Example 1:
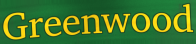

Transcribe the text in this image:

Greenwood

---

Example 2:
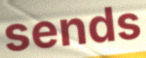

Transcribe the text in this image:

sends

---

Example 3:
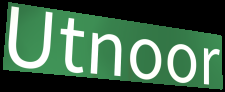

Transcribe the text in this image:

Utnoor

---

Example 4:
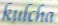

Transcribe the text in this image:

kulcha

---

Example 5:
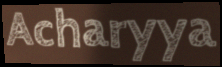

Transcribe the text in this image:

Acharyya